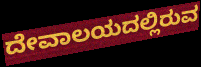
ದೇವಾಲಯದಲ್ಲಿರುವ